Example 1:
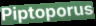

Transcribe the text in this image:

Piptoporus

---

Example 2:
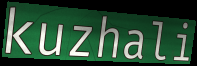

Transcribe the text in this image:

kuzhali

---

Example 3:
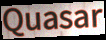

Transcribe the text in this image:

Quasar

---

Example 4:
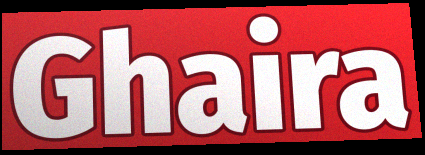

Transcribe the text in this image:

Ghaira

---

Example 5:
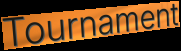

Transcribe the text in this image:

Tournament